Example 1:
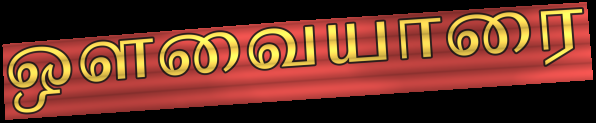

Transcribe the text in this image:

ஔவையாரை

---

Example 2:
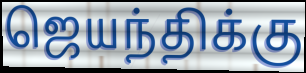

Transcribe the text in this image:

ஜெயந்திக்கு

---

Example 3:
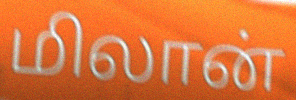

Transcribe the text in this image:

மிலான்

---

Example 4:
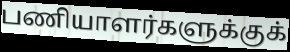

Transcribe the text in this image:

பணியாளர்களுக்குக்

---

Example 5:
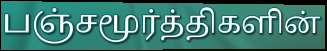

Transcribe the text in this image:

பஞ்சமூர்த்திகளின்